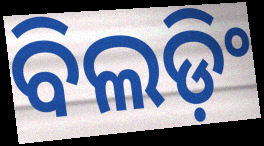
ବିଲଡ଼ିଂ